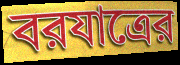
বরযাত্রের